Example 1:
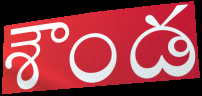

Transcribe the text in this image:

శౌండ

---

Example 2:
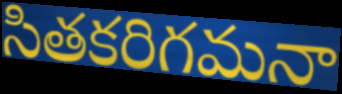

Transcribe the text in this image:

సితకరిగమనా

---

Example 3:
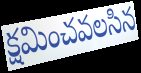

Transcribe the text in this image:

క్షమించవలసిన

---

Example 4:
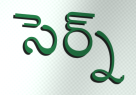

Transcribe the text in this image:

సెర్న్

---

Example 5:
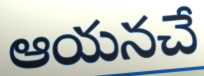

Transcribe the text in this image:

ఆయనచే